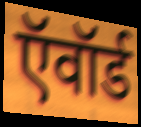
ऍवॉर्ड